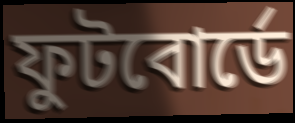
ফুটবোর্ডে